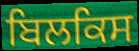
ਬਿਲਕਿਸ